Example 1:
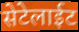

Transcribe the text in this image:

सेटेलाईट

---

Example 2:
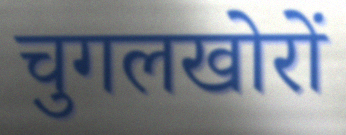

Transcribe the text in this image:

चुगलखोरों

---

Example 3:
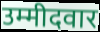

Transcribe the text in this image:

उम्मीदवार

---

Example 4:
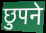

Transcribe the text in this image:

छुपने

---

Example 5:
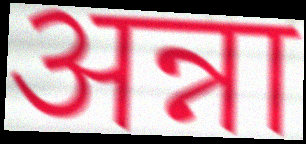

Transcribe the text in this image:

अन्ना